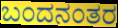
ಬಂದನಂತರ